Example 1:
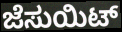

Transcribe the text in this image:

ಜೆಸುಯಿಟ್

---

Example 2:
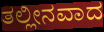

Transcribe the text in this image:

ತಲ್ಲೀನವಾದ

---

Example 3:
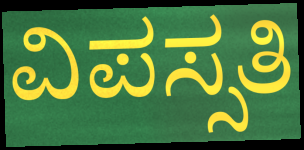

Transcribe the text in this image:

ವಿಪಸ್ಸತಿ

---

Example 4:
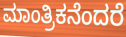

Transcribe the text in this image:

ಮಾಂತ್ರಿಕನೆಂದರೆ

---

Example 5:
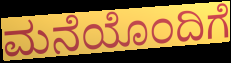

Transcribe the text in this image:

ಮನೆಯೊಂದಿಗೆ